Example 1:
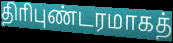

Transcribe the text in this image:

திரிபுண்டரமாகத்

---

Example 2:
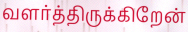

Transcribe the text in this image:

வளர்த்திருக்கிறேன்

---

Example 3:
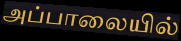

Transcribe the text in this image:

அப்பாலையில்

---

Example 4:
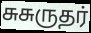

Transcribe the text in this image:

சுசுருதர்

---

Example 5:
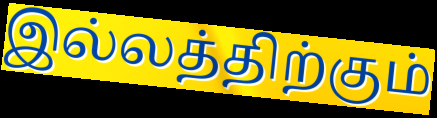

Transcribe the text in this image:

இல்லத்திற்கும்